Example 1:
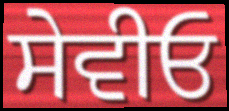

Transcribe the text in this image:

ਸੇਵੀਓ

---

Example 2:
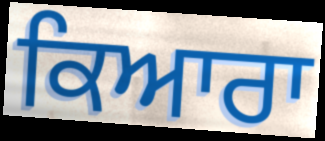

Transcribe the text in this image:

ਕਿਆਰਾ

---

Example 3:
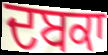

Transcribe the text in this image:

ਦਬਕਾ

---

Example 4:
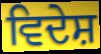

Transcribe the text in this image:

ਵਿਦੇਸ਼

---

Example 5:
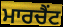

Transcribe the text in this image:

ਮਾਰਚੈਂਟ